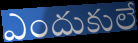
ఎందుకులే